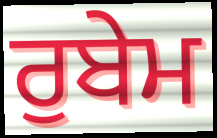
ਰੁਬੇਮ